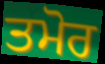
ਤਮੋਰ